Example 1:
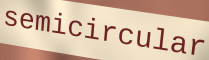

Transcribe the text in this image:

semicircular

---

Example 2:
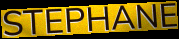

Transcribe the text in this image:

STEPHANE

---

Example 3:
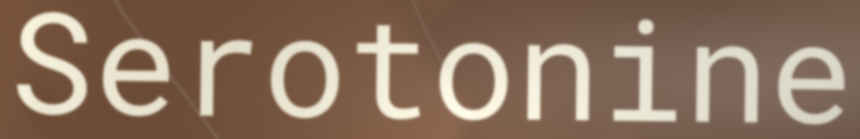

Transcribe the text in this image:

Serotonine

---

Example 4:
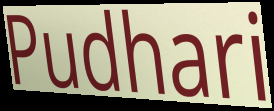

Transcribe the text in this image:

Pudhari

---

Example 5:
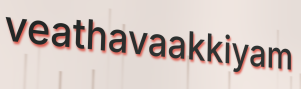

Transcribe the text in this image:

veathavaakkiyam